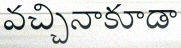
వచ్చినాకూడా